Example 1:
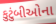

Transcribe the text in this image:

કુટુંબીઓના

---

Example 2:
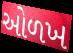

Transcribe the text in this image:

ઓળખ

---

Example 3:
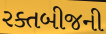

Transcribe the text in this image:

રક્તબીજની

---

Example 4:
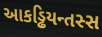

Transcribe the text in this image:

આકડ્ઢિયન્તસ્સ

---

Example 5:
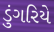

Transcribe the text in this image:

ડુંગરિયે